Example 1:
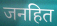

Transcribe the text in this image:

जनहित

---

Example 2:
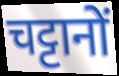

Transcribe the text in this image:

चट्टानों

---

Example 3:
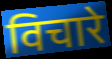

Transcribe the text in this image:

विचारे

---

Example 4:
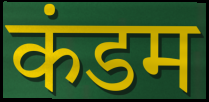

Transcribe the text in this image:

कंडम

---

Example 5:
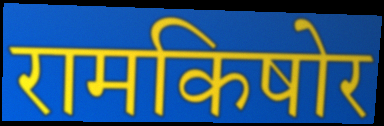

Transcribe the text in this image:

रामकिषोर